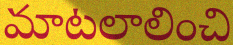
మాటలాలించి